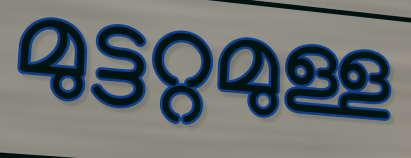
മുട്ടറ്റമുള്ള